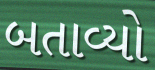
બતાવ્યો